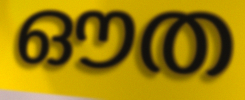
ഔത